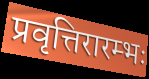
प्रवृत्तिरारम्भः